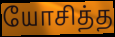
யோசித்த